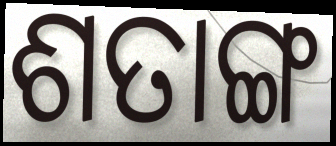
ଶତାଙ୍ଗ